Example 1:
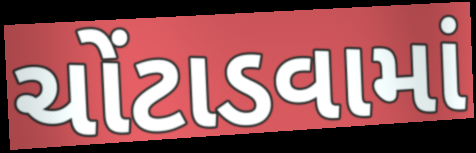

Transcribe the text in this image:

ચોંટાડવામાં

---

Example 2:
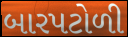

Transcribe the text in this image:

બારપટોળી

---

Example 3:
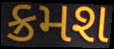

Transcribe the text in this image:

ક્રમશ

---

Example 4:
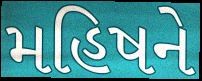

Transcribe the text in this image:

મહિષને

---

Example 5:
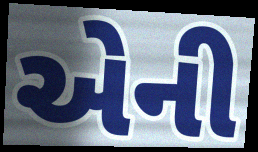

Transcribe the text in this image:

એની